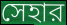
সেহার